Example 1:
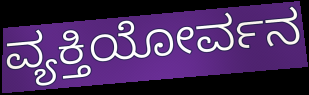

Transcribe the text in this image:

ವ್ಯಕ್ತಿಯೋರ್ವನ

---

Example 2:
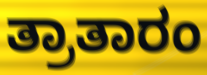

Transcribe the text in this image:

ತ್ರಾತಾರಂ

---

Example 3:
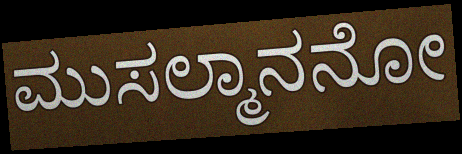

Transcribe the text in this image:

ಮುಸಲ್ಮಾನನೋ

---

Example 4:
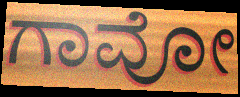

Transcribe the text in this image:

ಗಾವೋ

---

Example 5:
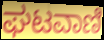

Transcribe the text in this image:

ಘಟವಾಣಿ